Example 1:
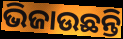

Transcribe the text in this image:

ଭିଜାଉଛନ୍ତି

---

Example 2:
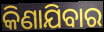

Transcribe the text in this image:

କିଣାଯିବାର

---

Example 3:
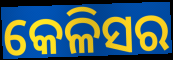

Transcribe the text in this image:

କେଳିସର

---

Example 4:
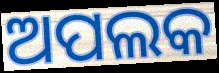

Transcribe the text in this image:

ଅପଲକ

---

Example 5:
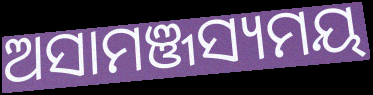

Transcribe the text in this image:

ଅସାମଞ୍ଜସ୍ୟମୟ